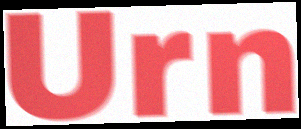
Urn